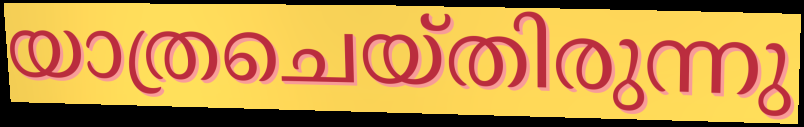
യാത്രചെയ്തിരുന്നു